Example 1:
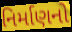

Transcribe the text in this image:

નિર્માણનો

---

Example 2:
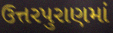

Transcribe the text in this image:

ઉત્તરપુરાણમાં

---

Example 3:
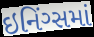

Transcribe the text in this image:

ઇનિંગ્સમાં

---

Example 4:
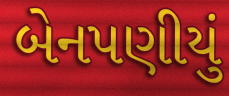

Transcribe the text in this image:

બેનપણીયું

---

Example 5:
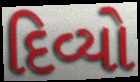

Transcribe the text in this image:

દિવ્યો